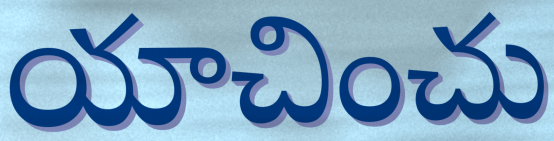
యాచించు